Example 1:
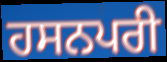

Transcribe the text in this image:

ਹਸਨਪਰੀ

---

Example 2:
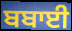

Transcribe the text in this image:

ਬਬਾਈ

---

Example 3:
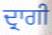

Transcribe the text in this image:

ਦ੍ਰਾਗੀ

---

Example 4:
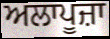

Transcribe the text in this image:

ਅਲਾਪੂਜ਼ਾ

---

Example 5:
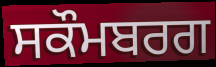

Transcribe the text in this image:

ਸਕੌਮਬਰਗ